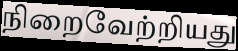
நிறைவேற்றியது